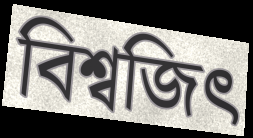
বিশ্বজিৎ